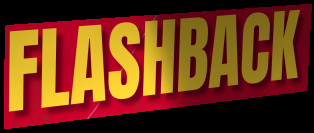
FLASHBACK